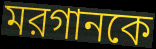
মরগানকে